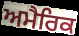
ਅਮੈਰਿਕ